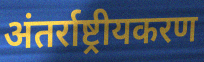
अंतर्राष्ट्रीयकरण